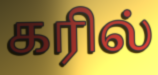
கரில்